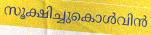
സൂക്ഷിച്ചുകൊൾവിൻ